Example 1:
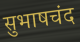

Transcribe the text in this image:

सुभाषचंद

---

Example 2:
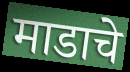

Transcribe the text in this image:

माडाचे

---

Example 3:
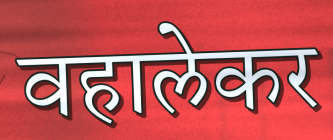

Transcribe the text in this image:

वहालेकर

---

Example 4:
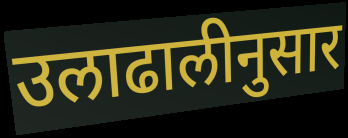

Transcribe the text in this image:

उलाढालीनुसार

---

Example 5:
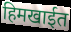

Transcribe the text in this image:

हिमखाईत